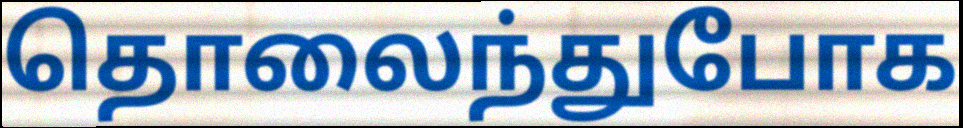
தொலைந்துபோக